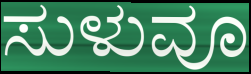
ಸುಳುವೂ